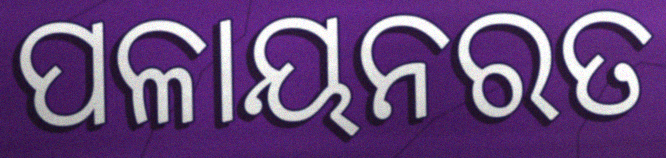
ପଳାୟନରତ